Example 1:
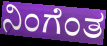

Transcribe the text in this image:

ನಿಂಗೆಂತ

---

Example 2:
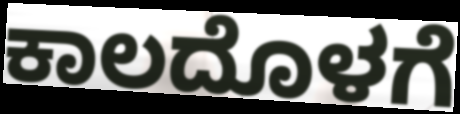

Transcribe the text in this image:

ಕಾಲದೊಳಗೆ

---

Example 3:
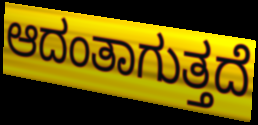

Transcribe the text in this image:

ಆದಂತಾಗುತ್ತದೆ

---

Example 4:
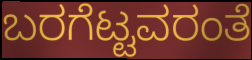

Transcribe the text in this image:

ಬರಗೆಟ್ಟವರಂತೆ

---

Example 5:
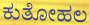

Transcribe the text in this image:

ಕುತೋಹಲ